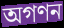
অগণন